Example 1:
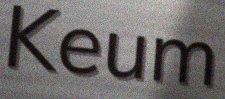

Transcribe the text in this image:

Keum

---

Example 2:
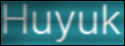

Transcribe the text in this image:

Huyuk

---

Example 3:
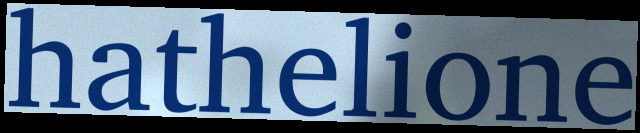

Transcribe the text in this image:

hathelione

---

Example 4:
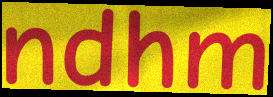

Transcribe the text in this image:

ndhm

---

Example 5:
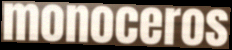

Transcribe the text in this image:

monoceros